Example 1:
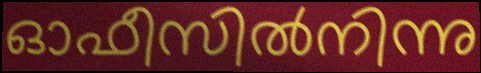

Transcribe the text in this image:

ഓഫീസിൽനിന്നു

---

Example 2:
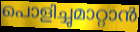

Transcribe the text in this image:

പൊളിച്ചുമാറ്റാൻ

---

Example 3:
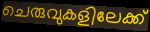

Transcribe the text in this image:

ചെരുവുകളിലേക്ക്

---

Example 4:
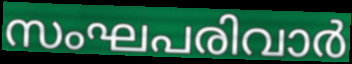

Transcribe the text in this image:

സംഘപരിവാർ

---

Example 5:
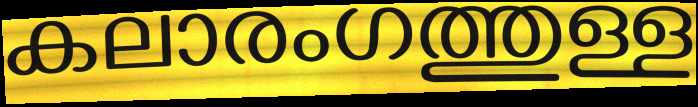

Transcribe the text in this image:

കലാരംഗത്തുള്ള